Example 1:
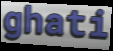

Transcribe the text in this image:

ghati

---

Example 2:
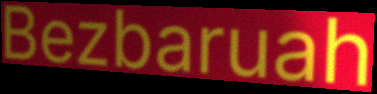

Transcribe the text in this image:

Bezbaruah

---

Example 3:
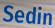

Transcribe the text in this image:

Sedin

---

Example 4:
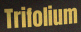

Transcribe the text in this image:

Trifolium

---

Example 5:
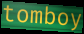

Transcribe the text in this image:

tomboy